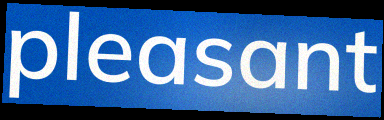
pleasant